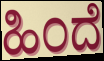
ಹಿಂದೆ